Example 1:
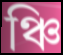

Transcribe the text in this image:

ঞ্চি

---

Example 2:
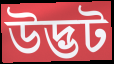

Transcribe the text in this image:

উদ্ভট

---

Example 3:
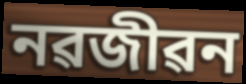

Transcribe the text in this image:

নৱজীৱন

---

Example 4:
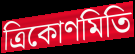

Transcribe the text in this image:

ত্ৰিকোণমিতি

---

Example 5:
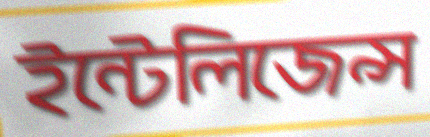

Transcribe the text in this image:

ইন্টেলিজেন্স